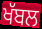
ਖੱਬਲ